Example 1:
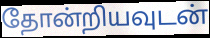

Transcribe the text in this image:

தோன்றியவுடன்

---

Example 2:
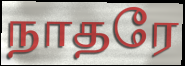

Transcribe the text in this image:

நாதரே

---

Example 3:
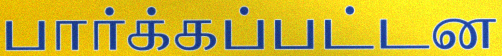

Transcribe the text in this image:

பார்க்கப்பட்டன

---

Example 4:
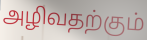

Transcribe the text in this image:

அழிவதற்கும்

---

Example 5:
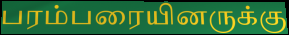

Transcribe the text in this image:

பரம்பரையினருக்கு